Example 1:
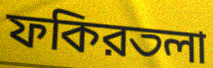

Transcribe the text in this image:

ফকিরতলা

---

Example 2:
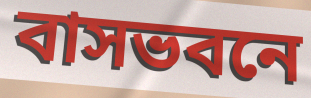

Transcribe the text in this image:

বাসভবনে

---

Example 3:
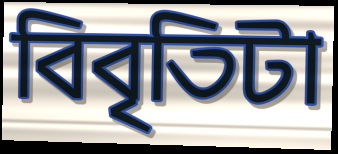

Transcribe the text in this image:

বিবৃতিটা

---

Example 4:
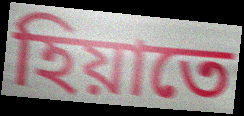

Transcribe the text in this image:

হিয়াতে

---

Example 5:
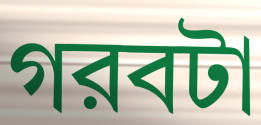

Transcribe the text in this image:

গরবটা